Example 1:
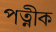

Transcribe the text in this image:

পত্নীক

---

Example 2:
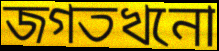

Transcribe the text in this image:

জগতখনো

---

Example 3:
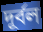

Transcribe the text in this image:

দূৰ্বল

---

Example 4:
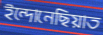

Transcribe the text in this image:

ইন্দোনেছিয়াত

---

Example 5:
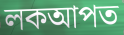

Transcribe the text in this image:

লকআপত